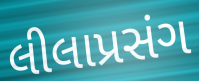
લીલાપ્રસંગ